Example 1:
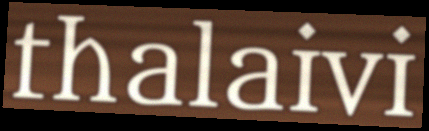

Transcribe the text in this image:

thalaivi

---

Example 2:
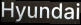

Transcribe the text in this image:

Hyundai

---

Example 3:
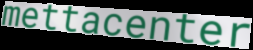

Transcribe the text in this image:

mettacenter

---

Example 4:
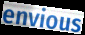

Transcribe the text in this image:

envious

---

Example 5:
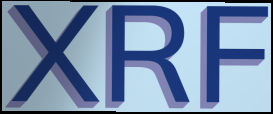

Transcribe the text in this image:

XRF